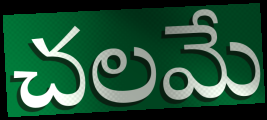
చలమే